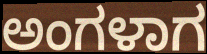
ಅಂಗಳಾಗ